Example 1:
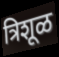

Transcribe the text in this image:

त्रिशूळ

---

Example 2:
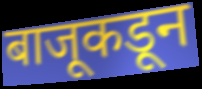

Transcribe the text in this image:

बाजूकडून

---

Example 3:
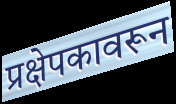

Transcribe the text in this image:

प्रक्षेपकावरून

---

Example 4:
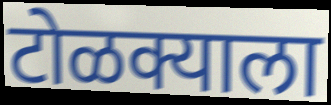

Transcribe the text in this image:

टोळक्याला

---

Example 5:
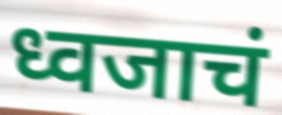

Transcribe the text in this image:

ध्वजाचं